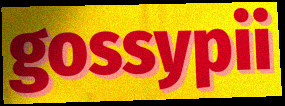
gossypii